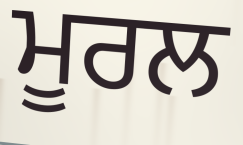
ਮੂਰਲ